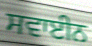
ਸਵਾਈਨ